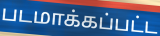
படமாக்கப்பட்ட